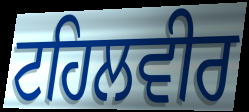
ਟਹਿਲਵੀਰ